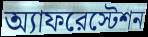
অ্যাফরেস্টেশন